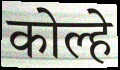
कोल्हे